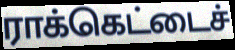
ராக்கெட்டைச்